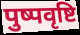
पुष्पवृष्टि